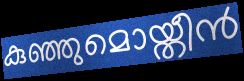
കുഞ്ഞുമൊയ്തീൻ